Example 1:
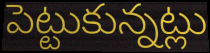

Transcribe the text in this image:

పెట్టుకున్నట్లు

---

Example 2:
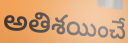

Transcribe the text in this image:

అతిశయించే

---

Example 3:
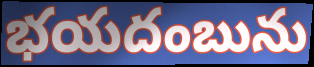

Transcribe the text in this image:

భయదంబును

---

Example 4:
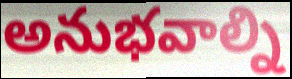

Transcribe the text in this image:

అనుభవాల్ని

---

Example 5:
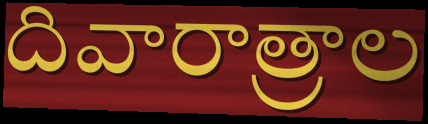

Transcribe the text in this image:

దివారాత్రాల